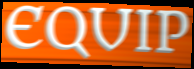
EQUIP